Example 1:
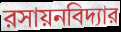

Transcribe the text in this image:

রসায়নবিদ্যার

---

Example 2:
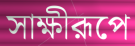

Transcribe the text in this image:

সাক্ষীরূপে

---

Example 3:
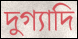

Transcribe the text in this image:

দুগ্যাদি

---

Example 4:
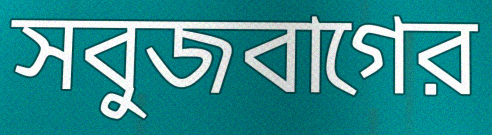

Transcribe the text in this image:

সবুজবাগের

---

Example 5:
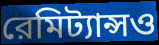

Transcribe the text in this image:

রেমিট্যান্সও